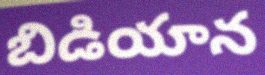
బిడియాన